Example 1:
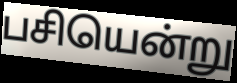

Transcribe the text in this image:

பசியென்று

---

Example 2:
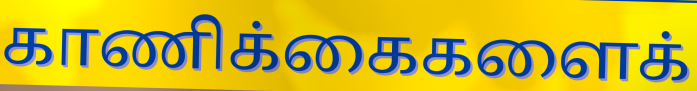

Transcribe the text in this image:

காணிக்கைகளைக்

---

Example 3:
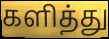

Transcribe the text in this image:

களித்து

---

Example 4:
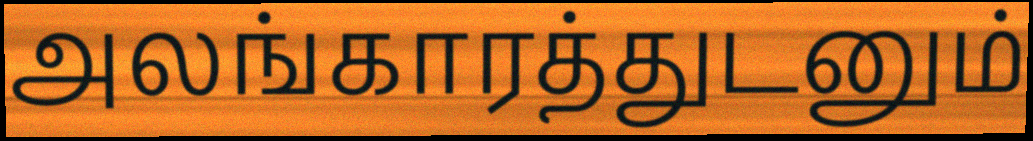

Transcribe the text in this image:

அலங்காரத்துடனும்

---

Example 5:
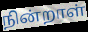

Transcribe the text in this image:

நின்றாள்